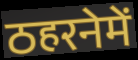
ठहरनेमें